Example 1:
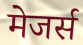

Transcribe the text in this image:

मेजर्स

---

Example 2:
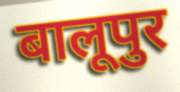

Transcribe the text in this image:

बालूपुर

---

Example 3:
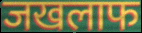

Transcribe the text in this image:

जखलाफ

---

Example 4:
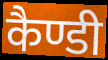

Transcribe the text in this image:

कैण्डी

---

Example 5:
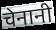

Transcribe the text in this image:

चेनानी